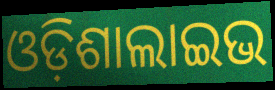
ଓଡ଼ିଶାଲାଇଭ